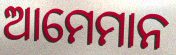
ଆମେମାନ